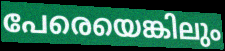
പേരെയെങ്കിലും